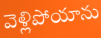
వెళ్లిపోయాను